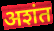
अशंत